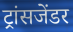
ट्रांसजेंडर